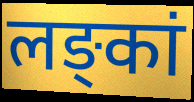
लङ्कां